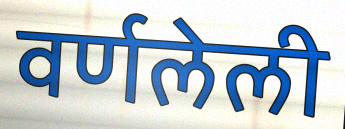
वर्णलेली